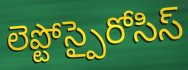
లెప్టోస్పైరోసిస్